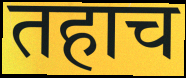
तहाच